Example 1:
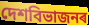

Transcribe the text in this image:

দেশবিভাজনৰ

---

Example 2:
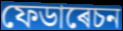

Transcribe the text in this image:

ফেডাৰেচন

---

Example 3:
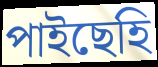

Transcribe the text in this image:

পাইছেহি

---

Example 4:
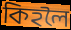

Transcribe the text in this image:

কিহলৈ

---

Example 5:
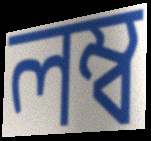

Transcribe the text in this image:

লম্ব